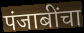
पंजाबींचा